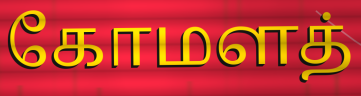
கோமளத்